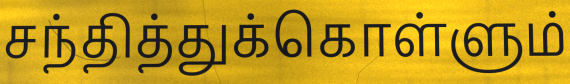
சந்தித்துக்கொள்ளும்